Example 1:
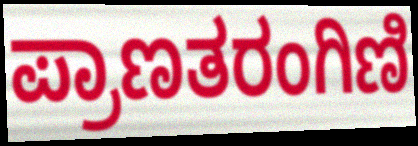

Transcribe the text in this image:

ಪ್ರಾಣತರಂಗಿಣಿ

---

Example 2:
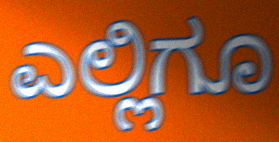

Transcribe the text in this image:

ಎಲ್ಲಿಗೂ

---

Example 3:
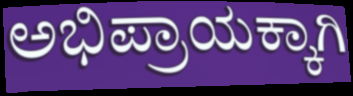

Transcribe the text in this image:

ಅಭಿಪ್ರಾಯಕ್ಕಾಗಿ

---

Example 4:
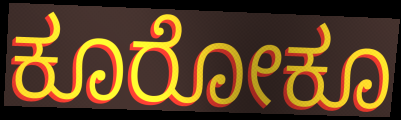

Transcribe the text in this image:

ಕೂರೋಕೂ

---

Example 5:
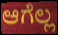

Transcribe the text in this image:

ಆಗೆಲ್ಲ